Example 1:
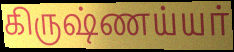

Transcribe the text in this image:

கிருஷ்ணய்யர்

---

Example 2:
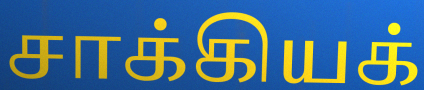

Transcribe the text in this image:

சாக்கியக்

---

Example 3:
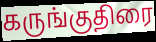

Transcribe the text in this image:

கருங்குதிரை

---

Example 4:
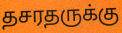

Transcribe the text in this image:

தசரதருக்கு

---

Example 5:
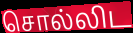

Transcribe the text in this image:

சொல்லிட